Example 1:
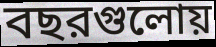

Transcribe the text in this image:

বছরগুলোয়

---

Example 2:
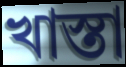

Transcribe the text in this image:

খাস্তা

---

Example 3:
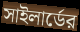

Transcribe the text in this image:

সাইলার্ডের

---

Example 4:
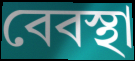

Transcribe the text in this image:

বেবস্থা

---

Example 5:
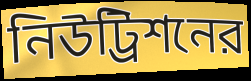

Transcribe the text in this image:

নিউট্রিশনের